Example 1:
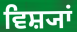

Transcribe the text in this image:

ਵਿਸ਼੍ਯਾਂ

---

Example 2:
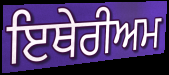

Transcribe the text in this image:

ਇਥੇਰੀਅਮ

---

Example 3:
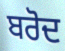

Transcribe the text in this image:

ਬਰੋਦ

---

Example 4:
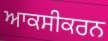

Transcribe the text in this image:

ਆਕਸੀਕਰਨ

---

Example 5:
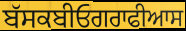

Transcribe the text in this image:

ਬੱਸਕਬੀਓਗਰਾਫੀਆਸ